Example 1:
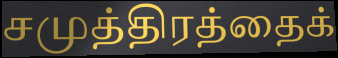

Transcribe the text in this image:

சமுத்திரத்தைக்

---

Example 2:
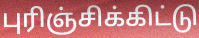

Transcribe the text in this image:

புரிஞ்சிக்கிட்டு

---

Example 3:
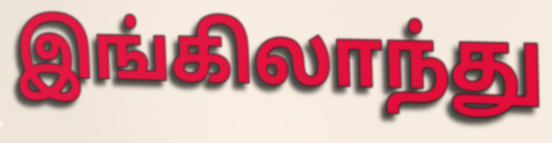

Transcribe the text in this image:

இங்கிலாந்து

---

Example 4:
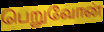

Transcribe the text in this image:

பெறுவோன்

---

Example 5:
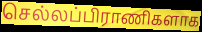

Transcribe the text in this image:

செல்லப்பிராணிகளாக